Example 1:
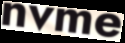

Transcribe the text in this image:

nvme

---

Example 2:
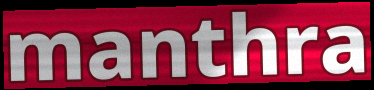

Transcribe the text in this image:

manthra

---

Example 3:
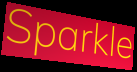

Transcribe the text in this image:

Sparkle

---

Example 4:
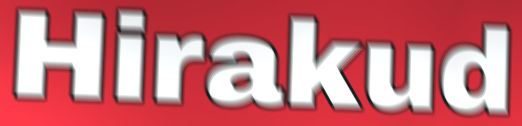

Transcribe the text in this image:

Hirakud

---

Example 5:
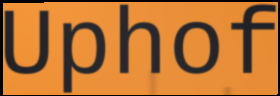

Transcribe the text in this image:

Uphof